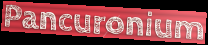
Pancuronium